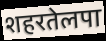
शहरतेलपा